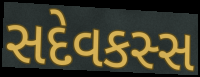
સદેવકસ્સ